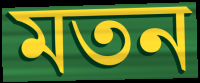
মতন